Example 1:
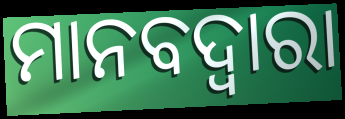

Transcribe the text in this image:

ମାନବଦ୍ୱାରା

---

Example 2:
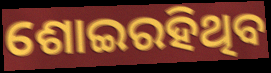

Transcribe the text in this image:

ଶୋଇରହିଥିବ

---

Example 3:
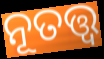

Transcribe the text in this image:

ନୂତତ୍ତ୍ବ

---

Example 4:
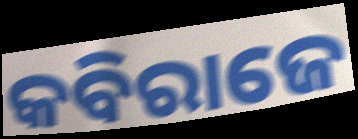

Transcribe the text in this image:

କବିରାଜେ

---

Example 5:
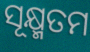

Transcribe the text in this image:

ସୂକ୍ଷ୍ମତମ